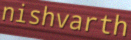
nishvarth